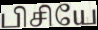
பிசியே